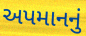
અપમાનનું